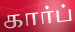
கார்ப்